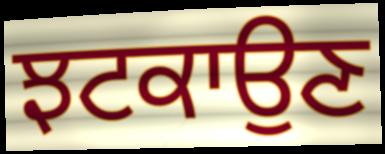
ਝਟਕਾਉਣ